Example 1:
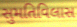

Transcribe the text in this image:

સુમતિવિલાસ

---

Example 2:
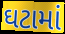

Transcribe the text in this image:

ઘટામાં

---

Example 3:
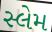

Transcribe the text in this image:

સ્લેમ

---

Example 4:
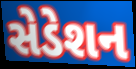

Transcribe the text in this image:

સેડેશન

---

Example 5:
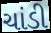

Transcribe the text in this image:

ચાંડી